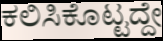
ಕಲಿಸಿಕೊಟ್ಟದ್ದೇ